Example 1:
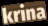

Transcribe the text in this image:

krina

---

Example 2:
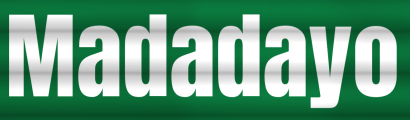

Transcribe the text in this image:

Madadayo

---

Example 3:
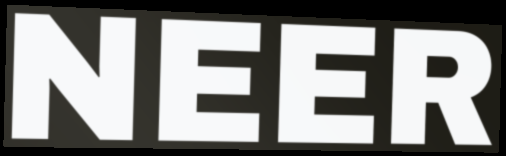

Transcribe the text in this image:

NEER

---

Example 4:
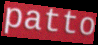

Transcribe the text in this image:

patto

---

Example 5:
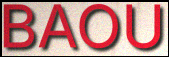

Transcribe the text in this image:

BAOU